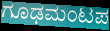
ಗೂಢಮಂಟಪ